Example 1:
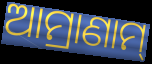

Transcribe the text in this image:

ଆମ୍ରାଣାମ୍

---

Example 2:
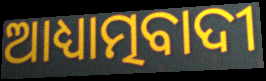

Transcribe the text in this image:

ଆଧ୍ୟାତ୍ମବାଦୀ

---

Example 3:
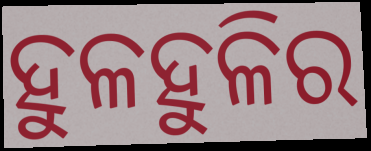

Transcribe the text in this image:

ହୁଳହୁଳିର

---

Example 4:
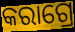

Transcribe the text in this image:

କରାଗ୍ରେ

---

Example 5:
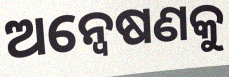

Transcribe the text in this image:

ଅନ୍ବେଷଣକୁ